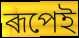
ৰূপেই